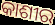
କାଶୀର